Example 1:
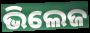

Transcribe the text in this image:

ଭିଲେଜ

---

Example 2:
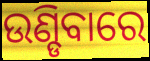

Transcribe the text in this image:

ଉଣ୍ଡିବାରେ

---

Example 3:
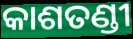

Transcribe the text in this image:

କାଶତଣ୍ଡୀ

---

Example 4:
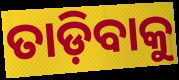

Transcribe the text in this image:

ତାଡ଼ିବାକୁ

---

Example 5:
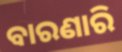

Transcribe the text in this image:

ବାରଣାରି